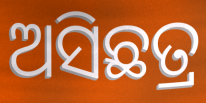
ଅସିଛତ୍ର